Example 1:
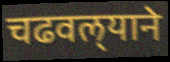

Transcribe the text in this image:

चढवल्याने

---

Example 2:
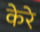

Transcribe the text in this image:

केरे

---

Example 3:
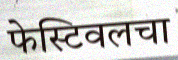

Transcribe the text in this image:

फेस्टिवलचा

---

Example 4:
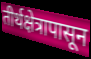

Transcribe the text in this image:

तीर्थक्षेत्रापासून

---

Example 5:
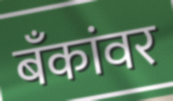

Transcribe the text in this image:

बँकांवर